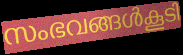
സംഭവങ്ങൾകൂടി